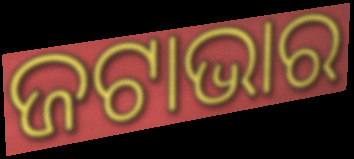
ଜଟାଭାର